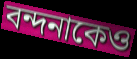
বন্দনাকেও